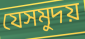
যেসমুদয়